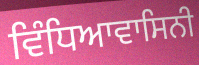
ਵਿੰਧਿਆਵਾਸਿਨੀ